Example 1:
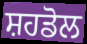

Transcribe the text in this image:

ਸ਼ਹਡੋਲ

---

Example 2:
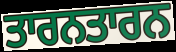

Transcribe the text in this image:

ਤਾਰਨਤਾਰਨ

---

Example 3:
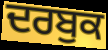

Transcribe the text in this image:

ਦਰਬੁਕ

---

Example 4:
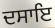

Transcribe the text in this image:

ਦਸਾਇ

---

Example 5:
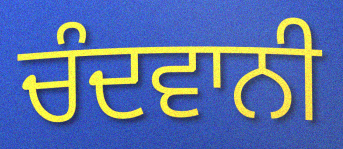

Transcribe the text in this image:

ਚੰਦਵਾਨੀ